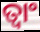
ତ୍ୱାଂ